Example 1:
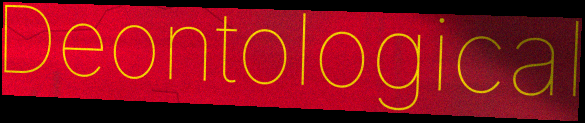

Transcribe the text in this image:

Deontological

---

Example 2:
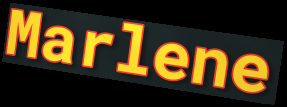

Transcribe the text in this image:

Marlene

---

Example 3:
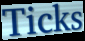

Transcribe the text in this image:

Ticks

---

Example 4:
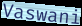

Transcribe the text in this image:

Vaswani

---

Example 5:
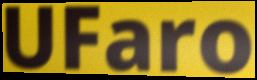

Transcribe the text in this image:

UFaro